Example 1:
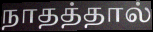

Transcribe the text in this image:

நாதத்தால்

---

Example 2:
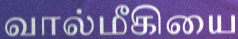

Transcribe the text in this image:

வால்மீகியை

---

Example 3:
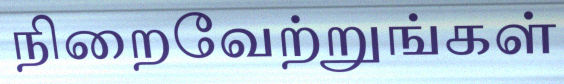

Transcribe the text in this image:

நிறைவேற்றுங்கள்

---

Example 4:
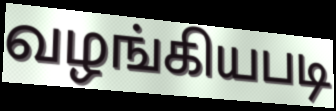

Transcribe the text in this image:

வழங்கியபடி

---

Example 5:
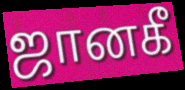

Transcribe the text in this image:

ஜானகீ